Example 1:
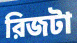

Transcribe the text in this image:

রিজটা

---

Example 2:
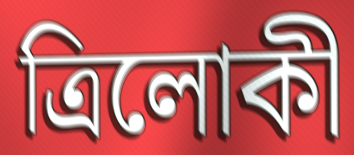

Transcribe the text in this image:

ত্রিলোকী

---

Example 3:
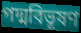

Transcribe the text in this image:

পদ্মবিভূষণ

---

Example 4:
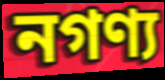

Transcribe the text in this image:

নগণ্য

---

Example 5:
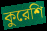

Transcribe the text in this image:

কুরেশি